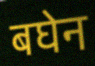
बघेन